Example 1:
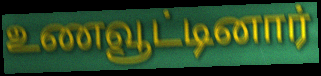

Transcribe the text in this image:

உணவூட்டினார்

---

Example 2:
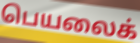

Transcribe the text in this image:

பெயலைக்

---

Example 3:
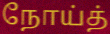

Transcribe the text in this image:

நோய்த்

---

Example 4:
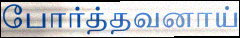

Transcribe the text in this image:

போர்த்தவனாய்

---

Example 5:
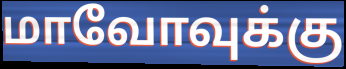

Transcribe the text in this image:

மாவோவுக்கு